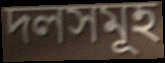
দলসমূহ